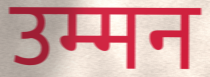
उम्मन